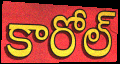
కారోల్